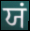
ਯਂ